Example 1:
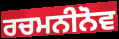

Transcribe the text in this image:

ਰਚਮਨੀਨੋਵ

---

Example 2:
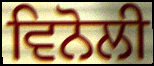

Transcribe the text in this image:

ਵਿਨੋਲੀ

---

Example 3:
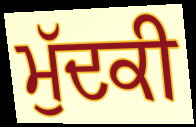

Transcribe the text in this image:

ਮੁੱਦਕੀ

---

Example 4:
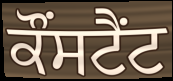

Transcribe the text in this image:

ਕੌਂਸਟੈਂਟ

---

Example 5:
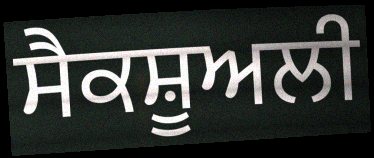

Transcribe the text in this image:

ਸੈਕਸ਼ੂਅਲੀ